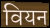
वियन